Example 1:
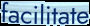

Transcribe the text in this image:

facilitate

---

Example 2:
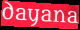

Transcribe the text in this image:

dayana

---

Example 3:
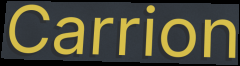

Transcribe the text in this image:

Carrion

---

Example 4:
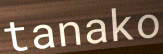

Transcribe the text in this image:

tanako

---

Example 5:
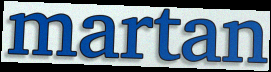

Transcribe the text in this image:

martan